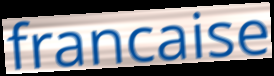
francaise